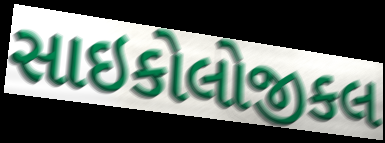
સાઇકોલોજીકલ